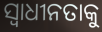
ସ୍ଵାଧୀନତାକୁ